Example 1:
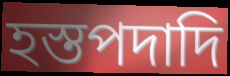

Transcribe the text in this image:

হস্তপদাদি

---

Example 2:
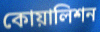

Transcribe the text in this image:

কোয়ালিশন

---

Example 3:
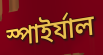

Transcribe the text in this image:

স্পাইর্যাল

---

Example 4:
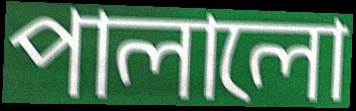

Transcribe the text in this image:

পালালো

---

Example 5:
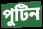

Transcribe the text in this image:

পুটিন